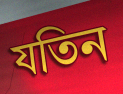
যতিন